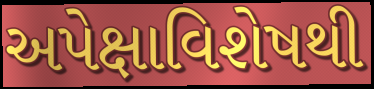
અપેક્ષાવિશેષથી